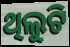
ଥିଲୁଟି